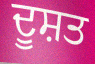
ਦੂਸ਼ਤ